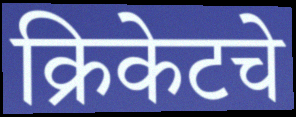
क्रिकेटचे